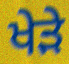
ਖੇੜੇ